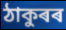
ঠাকুৰৰ